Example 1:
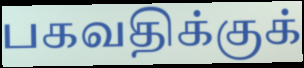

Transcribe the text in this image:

பகவதிக்குக்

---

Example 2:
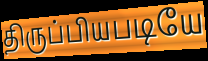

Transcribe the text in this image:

திருப்பியபடியே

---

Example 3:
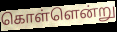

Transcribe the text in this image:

கொள்ளென்று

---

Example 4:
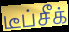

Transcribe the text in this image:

டீப்சீக்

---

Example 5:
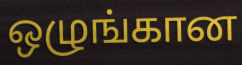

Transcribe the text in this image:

ஒழுங்கான